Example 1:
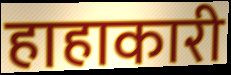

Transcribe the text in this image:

हाहाकारी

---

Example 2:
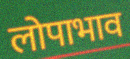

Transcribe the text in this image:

लोपाभाव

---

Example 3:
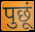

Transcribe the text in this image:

पुछूं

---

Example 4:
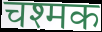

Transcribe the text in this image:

चश्मक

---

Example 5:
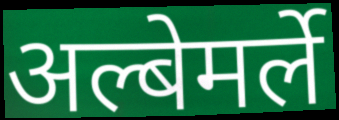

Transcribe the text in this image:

अल्बेमर्ले